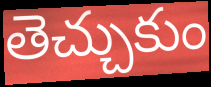
తెచ్చుకుం